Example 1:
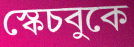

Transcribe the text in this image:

স্কেচবুকে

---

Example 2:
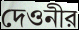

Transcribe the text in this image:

দেওনীর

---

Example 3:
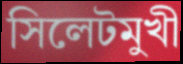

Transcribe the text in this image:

সিলেটমুখী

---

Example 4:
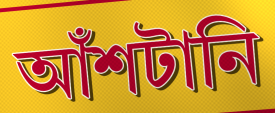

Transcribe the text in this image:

আঁশটানি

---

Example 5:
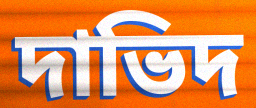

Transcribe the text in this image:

দাভিদ